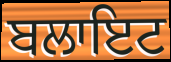
ਬਲਾਇਟ